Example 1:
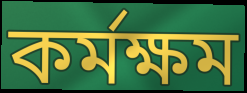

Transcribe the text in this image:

কৰ্মক্ষম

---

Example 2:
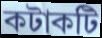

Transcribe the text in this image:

কটাকটি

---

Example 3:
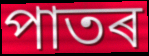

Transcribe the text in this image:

পাতৰ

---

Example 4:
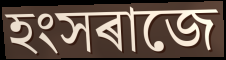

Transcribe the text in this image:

হংসৰাজে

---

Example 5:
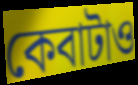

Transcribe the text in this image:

কেবাটাও